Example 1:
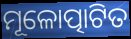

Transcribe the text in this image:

ମୂଳୋତ୍ପାଟିତ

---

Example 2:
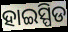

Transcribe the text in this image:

ହାଇସ୍ପିଡ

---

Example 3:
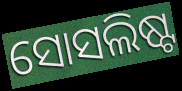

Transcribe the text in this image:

ସୋସଲିଷ୍ଟ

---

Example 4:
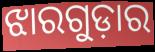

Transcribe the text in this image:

ଝାରଗୁଡ଼ାର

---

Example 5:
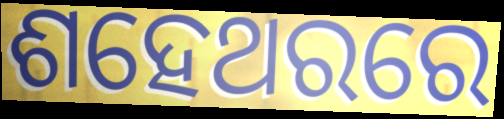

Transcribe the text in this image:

ଶହେଥରରେ